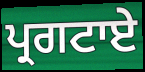
ਪ੍ਰਗਟਾਏ